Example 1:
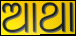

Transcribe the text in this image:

ଆଥା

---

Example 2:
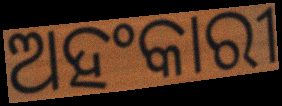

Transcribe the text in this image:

ଅହଂକାରୀ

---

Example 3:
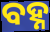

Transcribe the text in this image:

ବହ୍ନ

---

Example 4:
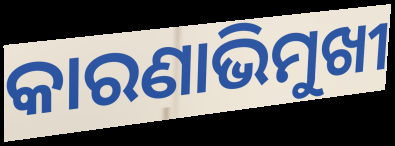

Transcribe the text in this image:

କାରଣାଭିମୁଖୀ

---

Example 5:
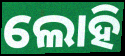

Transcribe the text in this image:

ଲୋହି